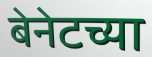
बेनेटच्या